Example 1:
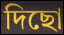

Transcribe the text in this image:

দিছো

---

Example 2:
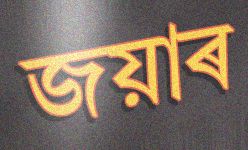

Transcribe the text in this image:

জয়াৰ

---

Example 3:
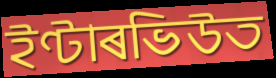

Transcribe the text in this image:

ইণ্টাৰভিউত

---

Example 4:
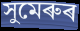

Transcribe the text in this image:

সুমেৰুৰ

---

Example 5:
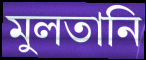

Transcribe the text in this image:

মুলতানি